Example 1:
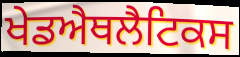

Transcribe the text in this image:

ਖੇਡਐਥਲੈਟਿਕਸ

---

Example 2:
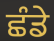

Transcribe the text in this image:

ਛੰਡੇ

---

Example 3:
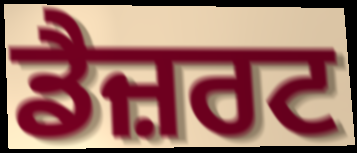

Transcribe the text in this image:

ਡੈਜ਼ਰਟ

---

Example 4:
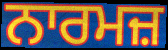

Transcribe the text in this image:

ਨਾਰਮਜ਼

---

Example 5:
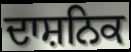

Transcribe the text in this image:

ਦਾਸ਼ਨਿਕ